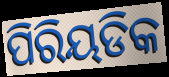
ପିରିୟଡିକ